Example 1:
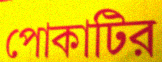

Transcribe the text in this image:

পোকাটির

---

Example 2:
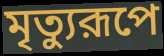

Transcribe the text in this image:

মৃত্যুরূপে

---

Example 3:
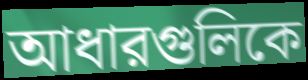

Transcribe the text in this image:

আধারগুলিকে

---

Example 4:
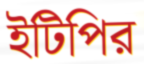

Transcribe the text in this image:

ইটিপির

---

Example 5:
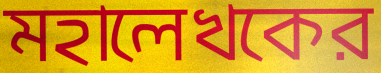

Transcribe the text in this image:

মহালেখকের